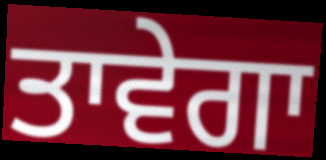
ਤਾਵੇਗਾ